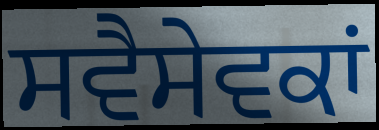
ਸਵੈਸੇਵਕਾਂ